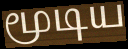
மூடிய